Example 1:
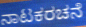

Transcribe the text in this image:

ನಾಟಕರಚನೆ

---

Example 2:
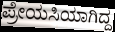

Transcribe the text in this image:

ಪ್ರೇಯಸಿಯಾಗಿದ್ದ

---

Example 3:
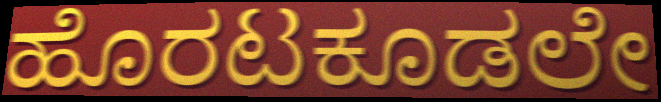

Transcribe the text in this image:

ಹೊರಟಕೂಡಲೇ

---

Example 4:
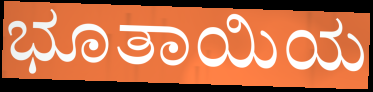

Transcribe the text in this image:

ಭೂತಾಯಿಯ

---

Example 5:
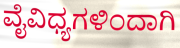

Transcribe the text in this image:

ವೈವಿಧ್ಯಗಳಿಂದಾಗಿ